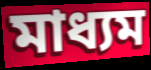
মাধ্যম